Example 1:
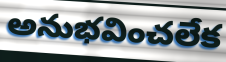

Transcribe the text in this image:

అనుభవించలేక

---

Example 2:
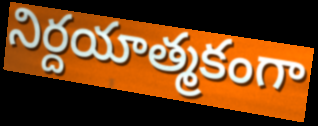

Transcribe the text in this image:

నిర్దయాత్మకంగా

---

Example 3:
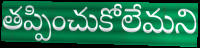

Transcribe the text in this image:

తప్పించుకోలేమని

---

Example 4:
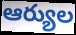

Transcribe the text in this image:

ఆర్యుల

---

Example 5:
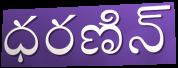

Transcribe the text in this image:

ధరణిన్